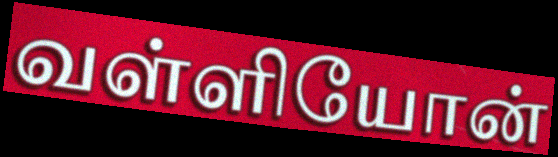
வள்ளியோன்